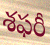
శఫరీ